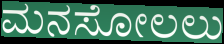
ಮನಸೋಲಲು